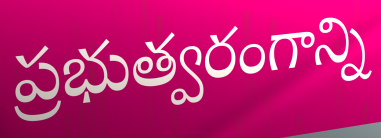
ప్రభుత్వరంగాన్ని